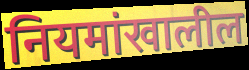
नियमांखालील